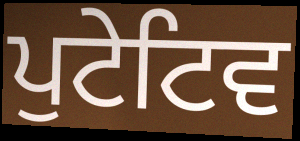
ਪੁਟੇਟਿਵ